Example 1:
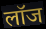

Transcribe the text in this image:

लॉज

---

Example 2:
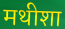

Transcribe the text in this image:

मथीशा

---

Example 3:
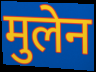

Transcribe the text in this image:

मुलेन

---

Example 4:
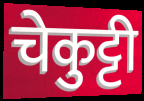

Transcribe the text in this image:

चेकुट्टी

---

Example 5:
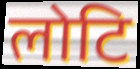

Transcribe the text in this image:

लोटि